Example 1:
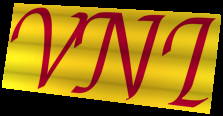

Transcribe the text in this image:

VNI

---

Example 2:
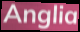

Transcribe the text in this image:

Anglia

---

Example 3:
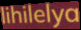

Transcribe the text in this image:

lihilelya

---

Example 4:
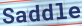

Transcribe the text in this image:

Saddle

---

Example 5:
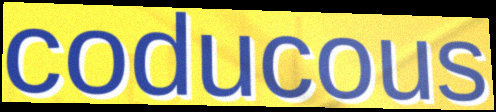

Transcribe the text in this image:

coducous